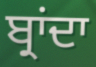
ਬ੍ਰਾਂਦਾ